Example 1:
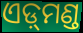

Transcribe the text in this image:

ଏଡ଼୍‌ମଣ୍ଡ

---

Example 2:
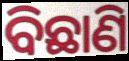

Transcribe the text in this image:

ବିଛାଣି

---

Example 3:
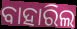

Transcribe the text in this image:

ବାହାରିଲ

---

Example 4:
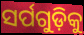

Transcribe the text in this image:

ସର୍ପଗୁଡ଼ିକୁ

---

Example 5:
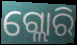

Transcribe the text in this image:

ଗ୍ଲୋରି